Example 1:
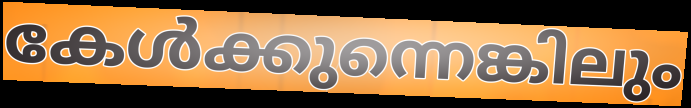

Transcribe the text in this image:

കേൾക്കുന്നെങ്കിലും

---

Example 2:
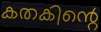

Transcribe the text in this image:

കതകിന്റെ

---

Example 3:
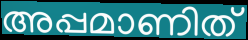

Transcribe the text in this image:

അപ്പമാണിത്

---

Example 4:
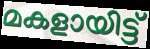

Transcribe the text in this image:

മകളായിട്ട്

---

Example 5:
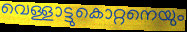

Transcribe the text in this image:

വെള്ളാട്ടുകൊറ്റനെയും